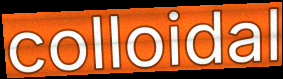
colloidal